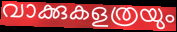
വാക്കുകളത്രയും